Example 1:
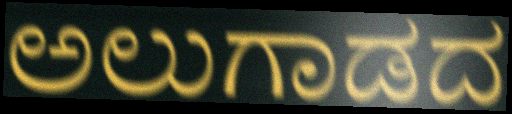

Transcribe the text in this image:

ಅಲುಗಾಡದ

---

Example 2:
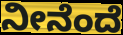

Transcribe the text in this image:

ನೀನೆಂದೆ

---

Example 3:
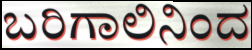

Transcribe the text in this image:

ಬರಿಗಾಲಿನಿಂದ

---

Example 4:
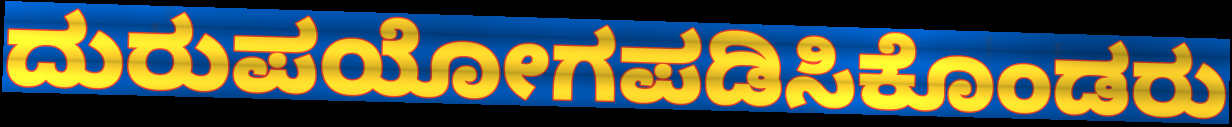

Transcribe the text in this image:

ದುರುಪಯೋಗಪಡಿಸಿಕೊಂಡರು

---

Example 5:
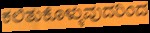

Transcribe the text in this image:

ಕಲಿತುಕೊಳ್ಳುವುದರಿಂದ